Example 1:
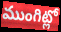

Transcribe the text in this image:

ముంగిట్లో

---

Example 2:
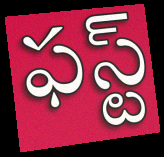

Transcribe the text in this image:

ఫస్ట్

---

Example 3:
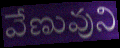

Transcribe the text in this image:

వేణువుని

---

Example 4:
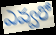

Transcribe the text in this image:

ఎవ్వరో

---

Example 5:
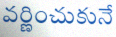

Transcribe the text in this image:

వర్ణించుకునే